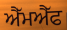
ਐੱਮਐੱਫ